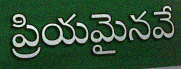
ప్రియమైనవే